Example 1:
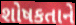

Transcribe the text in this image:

શોષકતાને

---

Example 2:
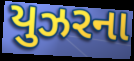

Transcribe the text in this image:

યુઝરના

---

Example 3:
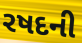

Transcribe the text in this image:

રષદની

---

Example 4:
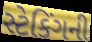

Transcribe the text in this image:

સ્ટેકિંગની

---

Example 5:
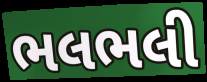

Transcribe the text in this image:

ભલભલી